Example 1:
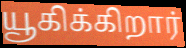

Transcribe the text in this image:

யூகிக்கிறார்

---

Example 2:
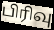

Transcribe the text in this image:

பிரிவு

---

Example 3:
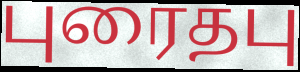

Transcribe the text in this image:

புரைதபு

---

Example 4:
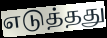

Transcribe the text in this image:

எடுத்தது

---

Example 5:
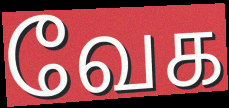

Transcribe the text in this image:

வேக